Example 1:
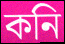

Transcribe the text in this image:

কনি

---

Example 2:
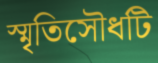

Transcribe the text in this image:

স্মৃতিসৌধটি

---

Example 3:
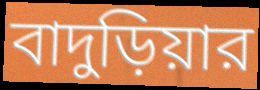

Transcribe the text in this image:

বাদুড়িয়ার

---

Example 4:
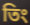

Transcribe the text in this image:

তিং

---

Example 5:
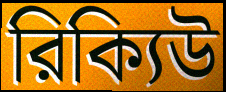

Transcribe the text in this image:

রিক্যিউ